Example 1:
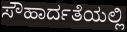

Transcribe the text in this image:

ಸೌಹಾರ್ದತೆಯಲ್ಲಿ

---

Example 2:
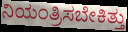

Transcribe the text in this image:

ನಿಯಂತ್ರಿಸಬೇಕಿತ್ತು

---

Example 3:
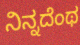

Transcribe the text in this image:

ನಿನ್ನದೆಂಥ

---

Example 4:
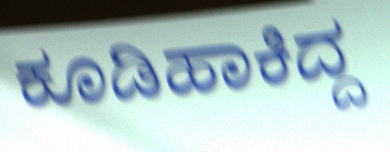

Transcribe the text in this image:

ಕೂಡಿಹಾಕಿದ್ದ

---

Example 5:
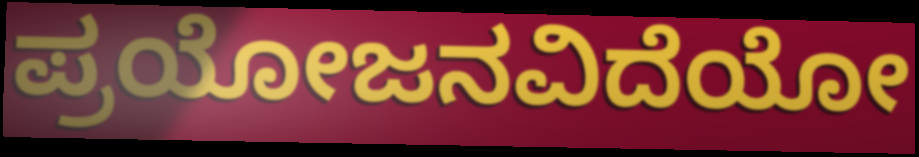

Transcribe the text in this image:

ಪ್ರಯೋಜನವಿದೆಯೋ